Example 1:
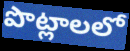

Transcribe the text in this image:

పొట్లాలలో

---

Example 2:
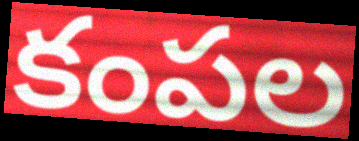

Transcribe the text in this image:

కంపల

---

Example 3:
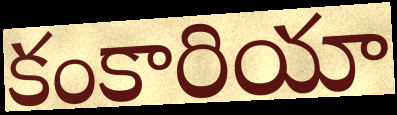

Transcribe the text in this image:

కంకారియా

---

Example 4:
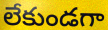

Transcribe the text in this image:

లేకుండగా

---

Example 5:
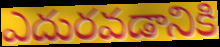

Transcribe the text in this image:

ఎదురవడానికి